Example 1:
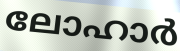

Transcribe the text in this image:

ലോഹാർ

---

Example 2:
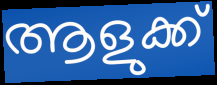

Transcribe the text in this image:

ആളുക്ക്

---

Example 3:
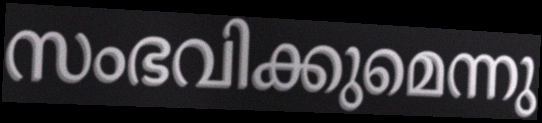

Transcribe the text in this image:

സംഭവിക്കുമെന്നു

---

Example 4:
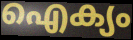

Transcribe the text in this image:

ഐക്യം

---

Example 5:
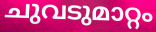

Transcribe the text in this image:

ചുവടുമാറ്റം